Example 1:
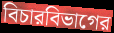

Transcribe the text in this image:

বিচারবিভাগের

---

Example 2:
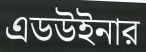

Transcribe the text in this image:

এডউইনার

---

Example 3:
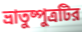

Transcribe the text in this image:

ভ্রাতুষ্পুত্রটির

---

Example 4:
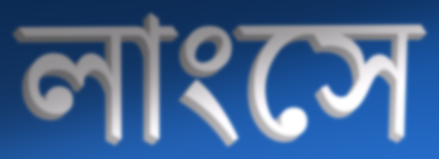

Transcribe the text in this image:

লাংসে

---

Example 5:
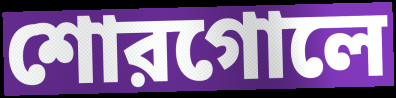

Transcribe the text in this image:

শোরগোলে